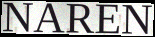
NAREN